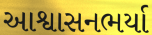
આશ્વાસનભર્યા